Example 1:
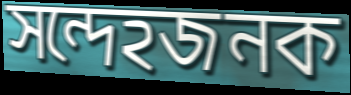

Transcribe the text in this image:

সন্দেহজনক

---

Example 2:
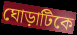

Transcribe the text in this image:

ঘোড়াটিকে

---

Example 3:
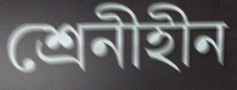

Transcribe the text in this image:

শ্রেনীহীন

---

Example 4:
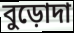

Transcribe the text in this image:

বুড়োদা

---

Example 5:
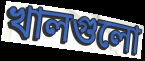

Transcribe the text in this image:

খালগুলো